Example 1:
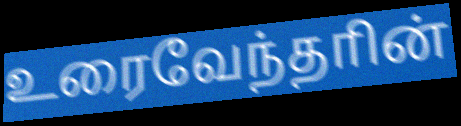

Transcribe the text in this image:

உரைவேந்தரின்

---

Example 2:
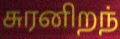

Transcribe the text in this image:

சுரனிறந்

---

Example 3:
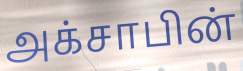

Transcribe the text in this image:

அக்சாபின்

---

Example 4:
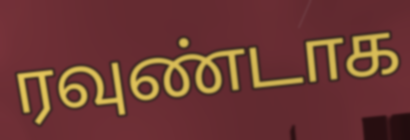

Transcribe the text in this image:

ரவுண்டாக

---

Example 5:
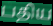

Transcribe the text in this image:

பதிய